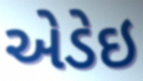
એડેઇ